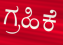
ಗ್ರಹಿಕೆ